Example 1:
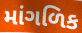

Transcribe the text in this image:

માંગળિક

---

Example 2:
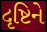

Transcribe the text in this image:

દૃષ્ટિને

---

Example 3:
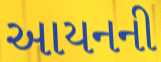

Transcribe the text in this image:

આયનની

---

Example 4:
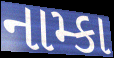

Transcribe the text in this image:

નામ્કા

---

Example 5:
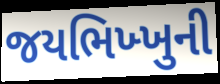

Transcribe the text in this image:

જયભિખ્ખુની